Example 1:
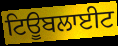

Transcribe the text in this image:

ਟਿਊਬਲਾਈਟ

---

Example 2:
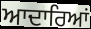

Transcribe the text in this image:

ਆਦਾਰਿਆਂ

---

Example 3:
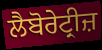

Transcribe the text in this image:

ਲੈਬੋਰੇਟ੍ਰੀਜ਼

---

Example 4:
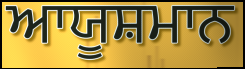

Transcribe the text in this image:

ਆਯੂਸ਼ਮਾਨ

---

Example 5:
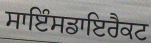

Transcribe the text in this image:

ਸਾਇੰਸਡਾਇਰੈਕਟ